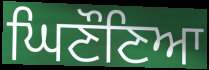
ਘਿਣੌਣਿਆ